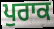
ਪੁਰਾਕ